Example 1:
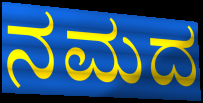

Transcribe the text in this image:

ನಮದ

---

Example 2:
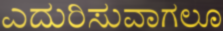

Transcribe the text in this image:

ಎದುರಿಸುವಾಗಲೂ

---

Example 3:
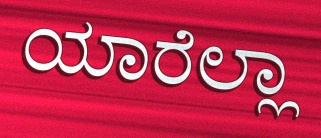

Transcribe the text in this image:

ಯಾರೆಲ್ಲಾ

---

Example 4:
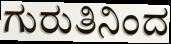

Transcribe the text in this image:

ಗುರುತಿನಿಂದ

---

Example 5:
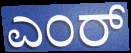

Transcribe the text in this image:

ಎಂರ್